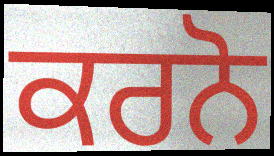
ਕਰਨੋ